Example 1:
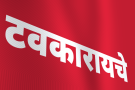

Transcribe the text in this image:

टवकारायचे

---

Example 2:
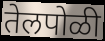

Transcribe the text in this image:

तेलपोळी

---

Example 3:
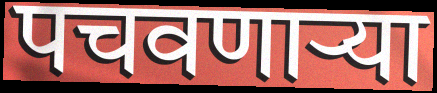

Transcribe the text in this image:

पचवणाऱ्या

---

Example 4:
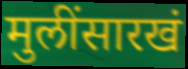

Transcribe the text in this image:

मुलींसारखं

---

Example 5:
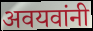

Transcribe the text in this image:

अवयवांनी